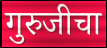
गुरुजीचा